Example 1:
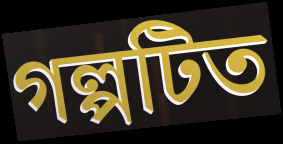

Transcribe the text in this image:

গল্পটিত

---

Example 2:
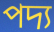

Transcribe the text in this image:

পদ্য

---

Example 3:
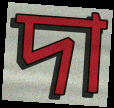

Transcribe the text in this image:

দা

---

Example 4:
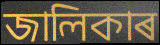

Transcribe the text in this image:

জালিকাৰ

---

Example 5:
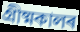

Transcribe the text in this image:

গ্ৰীষ্মকালৰ